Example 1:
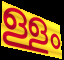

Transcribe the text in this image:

ള്ളം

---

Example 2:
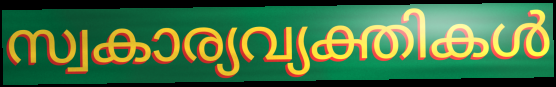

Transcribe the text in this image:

സ്വകാര്യവ്യക്തികൾ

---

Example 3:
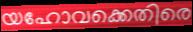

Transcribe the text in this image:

യഹോവക്കെതിരെ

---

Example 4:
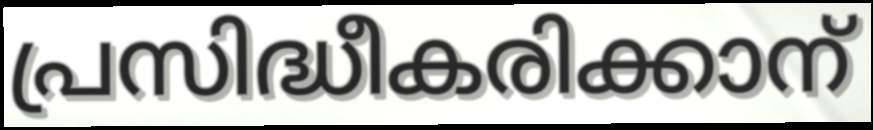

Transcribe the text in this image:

പ്രസിദ്ധീകരിക്കാന്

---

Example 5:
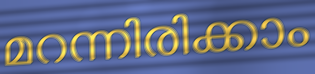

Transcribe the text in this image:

മറന്നിരിക്കാം